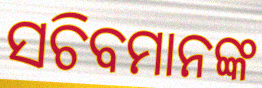
ସଚିବମାନଙ୍କ